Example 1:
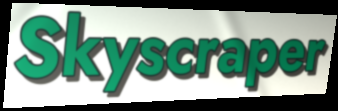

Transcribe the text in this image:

Skyscraper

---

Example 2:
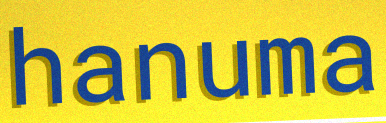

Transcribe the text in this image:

hanuma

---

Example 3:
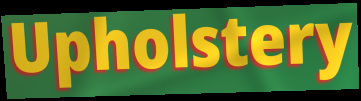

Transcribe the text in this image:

Upholstery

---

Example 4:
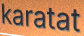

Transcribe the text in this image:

karatat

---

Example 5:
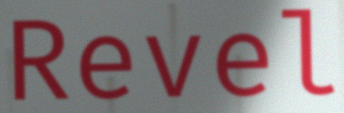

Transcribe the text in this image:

Revel